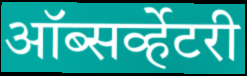
ऑब्सर्व्हेटरी